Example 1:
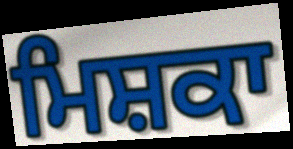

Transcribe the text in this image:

ਮਿਸ਼ਕਾ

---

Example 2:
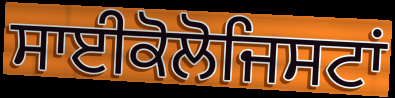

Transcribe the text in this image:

ਸਾਈਕੋਲੋਜਿਸਟਾਂ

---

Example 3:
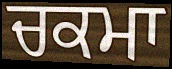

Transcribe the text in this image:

ਚਕਮਾ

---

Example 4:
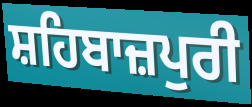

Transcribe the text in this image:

ਸ਼ਹਿਬਾਜ਼ਪੁਰੀ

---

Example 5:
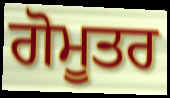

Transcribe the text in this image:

ਗੋਮੂਤਰ